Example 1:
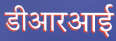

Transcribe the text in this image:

डीआरआई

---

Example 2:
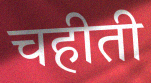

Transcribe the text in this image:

चहीती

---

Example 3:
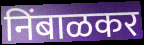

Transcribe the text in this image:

निंबाळकर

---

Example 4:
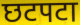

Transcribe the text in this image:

छटपटा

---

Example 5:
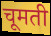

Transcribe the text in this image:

चूमती